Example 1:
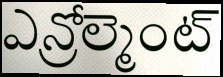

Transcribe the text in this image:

ఎన్రోల్మెంట్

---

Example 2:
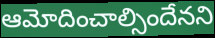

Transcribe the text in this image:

ఆమోదించాల్సిందేనని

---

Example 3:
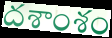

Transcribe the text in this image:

దశాంశం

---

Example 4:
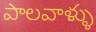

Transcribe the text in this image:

పాలవాళ్ళు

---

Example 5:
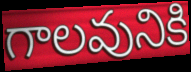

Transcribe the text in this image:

గాలవునికి